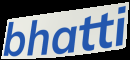
bhatti